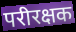
परीरक्षक